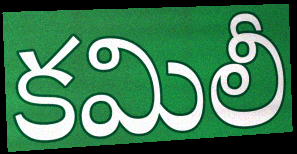
కమిలీ